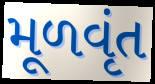
મૂળવૃંત